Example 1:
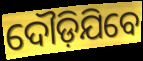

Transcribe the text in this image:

ଦୌଡ଼ିଯିବେ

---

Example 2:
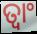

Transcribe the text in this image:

ତ୍ୱାଂ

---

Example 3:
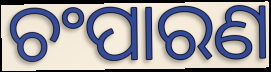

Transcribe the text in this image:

ଚଂପାରଣ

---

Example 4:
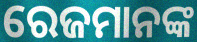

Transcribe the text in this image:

ରେଜମାନଙ୍କ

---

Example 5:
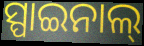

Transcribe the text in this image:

ସ୍ପାଇନାଲ୍